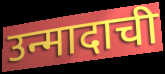
उन्मादाची